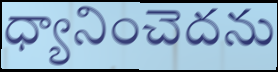
ధ్యానించెదను